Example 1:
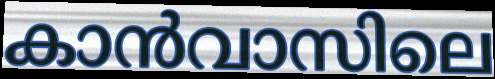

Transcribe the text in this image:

കാൻവാസിലെ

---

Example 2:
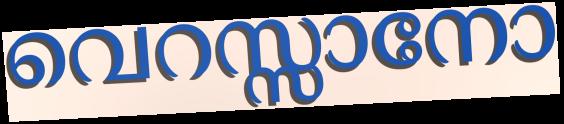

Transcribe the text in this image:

വെറസ്സാനോ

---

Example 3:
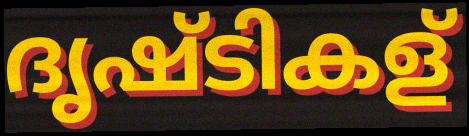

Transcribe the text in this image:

ദൃഷ്ടികള്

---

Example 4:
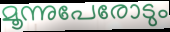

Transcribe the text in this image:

മൂന്നുപേരോടും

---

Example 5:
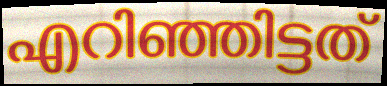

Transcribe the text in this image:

എറിഞ്ഞിട്ടത്